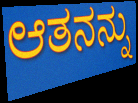
ಆತನನ್ನು